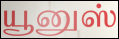
யூனுஸ்